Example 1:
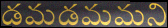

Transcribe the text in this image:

డమడమమని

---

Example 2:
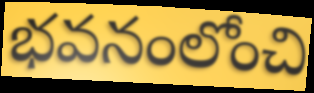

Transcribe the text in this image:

భవనంలోంచి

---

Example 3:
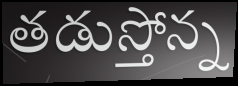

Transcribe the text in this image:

తడుస్తోన్న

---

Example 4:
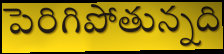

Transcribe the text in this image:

పెరిగిపోతున్నది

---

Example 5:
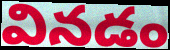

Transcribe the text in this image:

వినడం